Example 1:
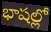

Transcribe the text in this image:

భాషల్లో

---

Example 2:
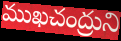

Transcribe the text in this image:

ముఖచంద్రుని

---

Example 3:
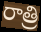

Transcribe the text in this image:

రాత్రి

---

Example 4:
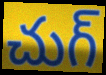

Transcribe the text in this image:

చుగ్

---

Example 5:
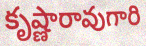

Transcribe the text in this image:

కృష్ణారావుగారి